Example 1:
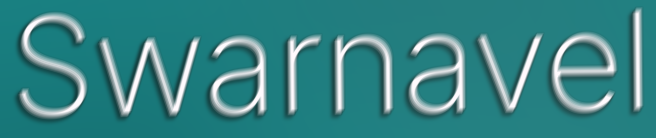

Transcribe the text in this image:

Swarnavel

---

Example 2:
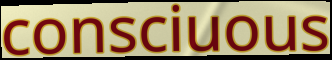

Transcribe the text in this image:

consciuous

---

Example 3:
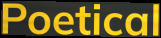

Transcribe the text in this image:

Poetical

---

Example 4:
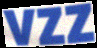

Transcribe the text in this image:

vzz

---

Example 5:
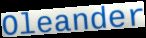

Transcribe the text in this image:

Oleander